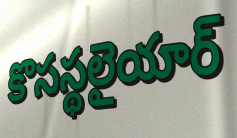
కొసస్థలైయార్